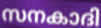
സനകാദി